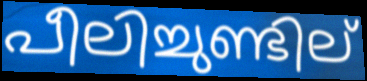
പീലിച്ചുണ്ടില്